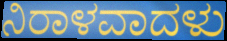
ನಿರಾಳವಾದಳು